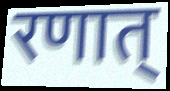
रणात्